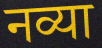
नव्या